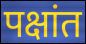
पक्षांत